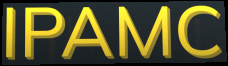
IPAMC